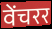
वेंचरर